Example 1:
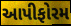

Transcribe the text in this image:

આપીફોરમ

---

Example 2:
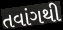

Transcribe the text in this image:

તવાંગથી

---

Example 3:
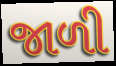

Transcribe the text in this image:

જાળી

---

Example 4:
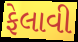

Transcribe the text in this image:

ફેલાવી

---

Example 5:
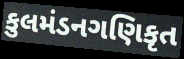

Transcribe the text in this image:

કુલમંડનગણિકૃત